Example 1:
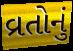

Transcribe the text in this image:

વ્રતોનું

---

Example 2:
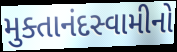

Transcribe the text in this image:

મુક્તાનંદસ્વામીનો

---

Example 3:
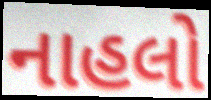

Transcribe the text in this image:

નાહલો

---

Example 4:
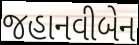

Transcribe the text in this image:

જહાનવીબેન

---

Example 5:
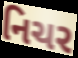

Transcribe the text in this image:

નિચર